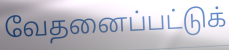
வேதனைப்பட்டுக்